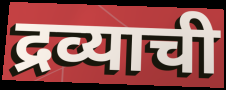
द्रव्याची